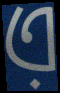
ଏ଼